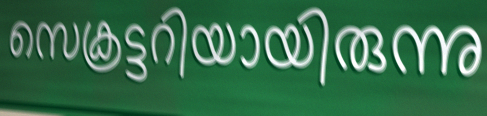
സെക്രട്ടറിയായിരുന്നു